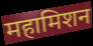
महामिशन